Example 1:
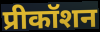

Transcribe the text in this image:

प्रीकॉशन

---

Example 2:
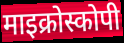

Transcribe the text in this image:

माइक्रोस्कोपी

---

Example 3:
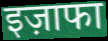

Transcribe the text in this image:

इज़ाफा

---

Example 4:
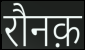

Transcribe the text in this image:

रौनक़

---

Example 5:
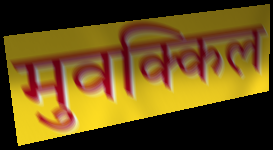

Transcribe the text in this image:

मुवक्किल